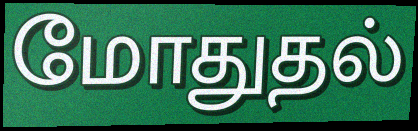
மோதுதல்